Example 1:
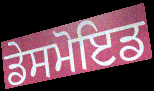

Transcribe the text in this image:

ਡੇਸਮੋਇਡ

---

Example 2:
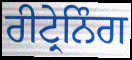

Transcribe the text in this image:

ਰੀਟ੍ਰੇਨਿੰਗ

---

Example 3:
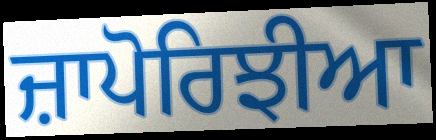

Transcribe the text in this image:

ਜ਼ਾਪੋਰਿਝੀਆ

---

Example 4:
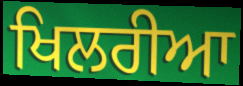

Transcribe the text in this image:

ਖਿਲਰੀਆ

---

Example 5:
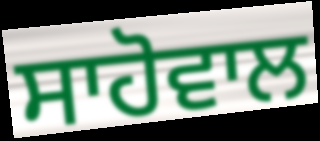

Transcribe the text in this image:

ਸਾਹੋਵਾਲ